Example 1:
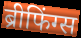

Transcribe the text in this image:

ब्रीफिंग्स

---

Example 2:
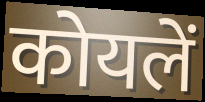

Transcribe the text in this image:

कोयलें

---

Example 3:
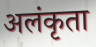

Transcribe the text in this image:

अलंकृता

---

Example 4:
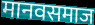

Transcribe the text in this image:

मानवसमाज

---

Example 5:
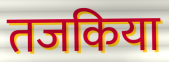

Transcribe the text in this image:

तजकिया